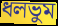
ধলভুম